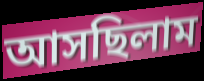
আসছিলাম